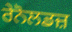
ਰੇਨੋਲਡਜ਼